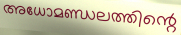
അധോമണ്ഡലത്തിന്റെ